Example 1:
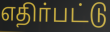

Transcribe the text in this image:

எதிர்பட்டு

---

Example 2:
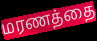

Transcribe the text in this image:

மரணத்தை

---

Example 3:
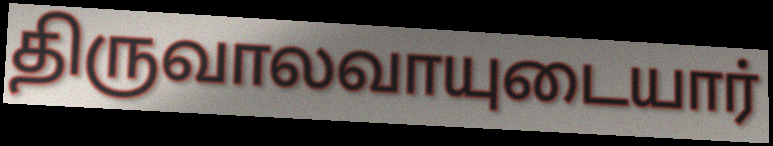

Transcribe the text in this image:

திருவாலவாயுடையார்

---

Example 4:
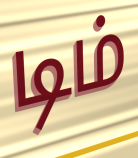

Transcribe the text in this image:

டிம்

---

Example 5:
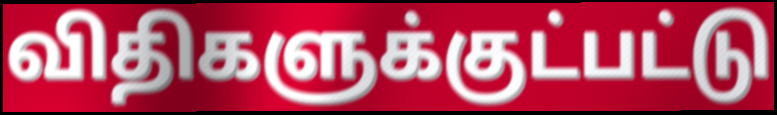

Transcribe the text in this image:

விதிகளுக்குட்பட்டு